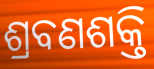
ଶ୍ରବଣଶକ୍ତି